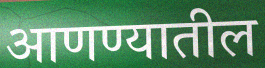
आणण्यातील